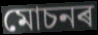
মোচনৰ